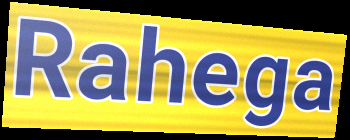
Rahega